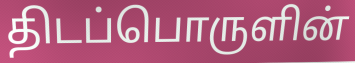
திடப்பொருளின்